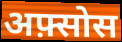
अफ़्सोस